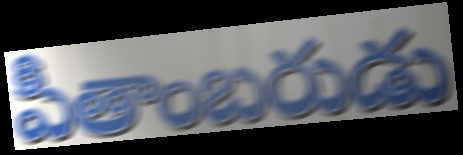
పీతాంబరుడు